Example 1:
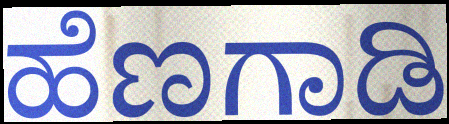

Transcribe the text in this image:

ಹೆಣಗಾಡಿ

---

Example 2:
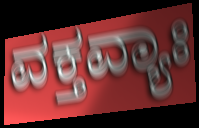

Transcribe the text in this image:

ವಕ್ತವ್ಯಾಃ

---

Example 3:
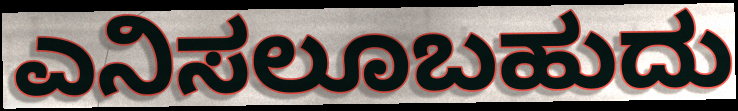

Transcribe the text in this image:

ಎನಿಸಲೂಬಹುದು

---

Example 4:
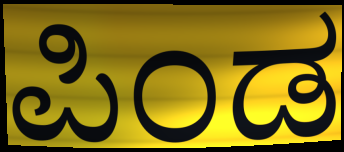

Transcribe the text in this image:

ಪಿಂಡ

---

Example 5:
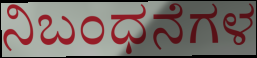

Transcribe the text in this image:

ನಿಬಂಧನೆಗಳ